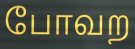
போவற